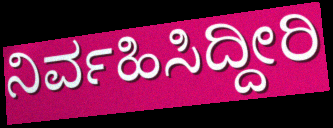
ನಿರ್ವಹಿಸಿದ್ದೀರಿ